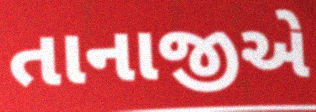
તાનાજીએ